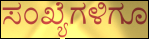
ಸಂಖ್ಯೆಗಳಿಗೂ